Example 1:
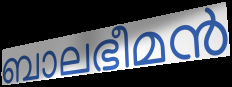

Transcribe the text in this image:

ബാലഭീമൻ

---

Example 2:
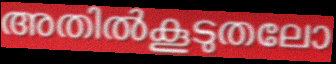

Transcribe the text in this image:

അതിൽകൂടുതലോ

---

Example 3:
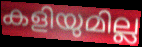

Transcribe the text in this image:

കളിയുമില്ല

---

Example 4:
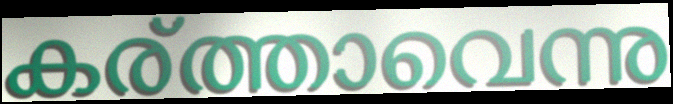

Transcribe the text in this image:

കര്ത്താവെന്നു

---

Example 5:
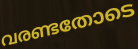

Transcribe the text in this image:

വരണ്ടതോടെ